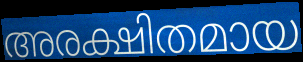
അരക്ഷിതമായ